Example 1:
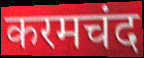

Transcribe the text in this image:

करमचंद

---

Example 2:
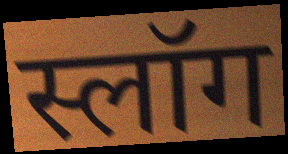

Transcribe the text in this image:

स्लॉग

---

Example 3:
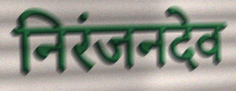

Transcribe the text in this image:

निरंजनदेव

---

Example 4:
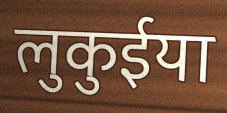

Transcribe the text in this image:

लुकुईया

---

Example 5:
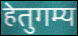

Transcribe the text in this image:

हेतुगम्य